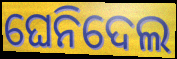
ଘେନିଦେଲ